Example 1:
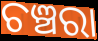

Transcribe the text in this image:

ଚଞ୍ଚରା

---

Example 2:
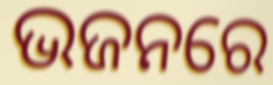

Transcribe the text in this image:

ଭଜନରେ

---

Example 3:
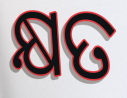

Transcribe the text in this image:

କ୍ଷତ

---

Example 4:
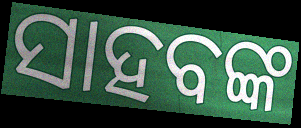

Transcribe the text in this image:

ସାହବଙ୍କ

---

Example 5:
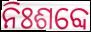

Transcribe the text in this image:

ନିଃଶବ୍ଦେ